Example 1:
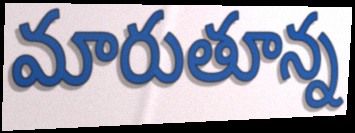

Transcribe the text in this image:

మారుతూన్న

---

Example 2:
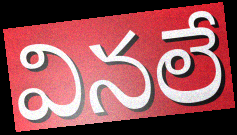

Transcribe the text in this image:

వినలే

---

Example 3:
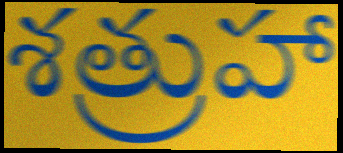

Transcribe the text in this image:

శత్రుహా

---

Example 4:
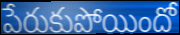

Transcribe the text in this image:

పేరుకుపోయిందో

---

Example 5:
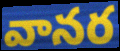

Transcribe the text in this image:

వానర